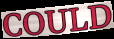
COULD